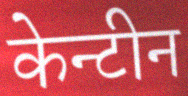
केन्टीन